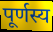
पूर्णस्य